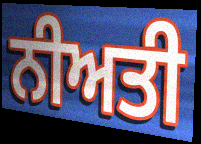
ਨੀਅਤੀ